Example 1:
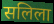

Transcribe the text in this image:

सलिला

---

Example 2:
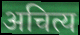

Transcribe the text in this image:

अचित्य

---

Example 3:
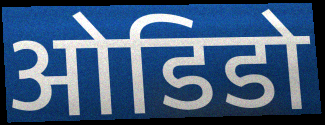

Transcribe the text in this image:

ओडिडो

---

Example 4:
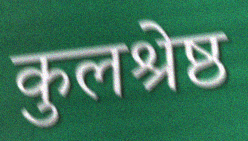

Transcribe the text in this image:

कुलश्रेष्ठ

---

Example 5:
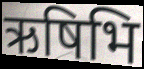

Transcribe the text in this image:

ऋषिभि